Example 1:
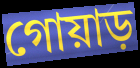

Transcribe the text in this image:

গোয়াড়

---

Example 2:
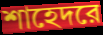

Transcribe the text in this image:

শাহেদরে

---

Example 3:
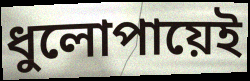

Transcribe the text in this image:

ধুলোপায়েই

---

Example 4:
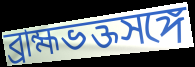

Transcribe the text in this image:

ব্রাহ্মভক্তসঙ্গে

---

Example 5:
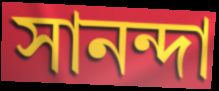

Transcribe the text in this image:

সানন্দা